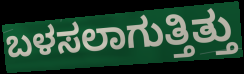
ಬಳಸಲಾಗುತ್ತಿತ್ತು